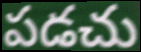
పడచు